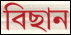
বিছান